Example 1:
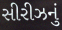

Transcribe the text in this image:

સીરીઝનું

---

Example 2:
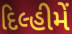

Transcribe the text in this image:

દિલ્હીમેં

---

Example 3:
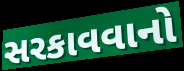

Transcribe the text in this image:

સરકાવવાનો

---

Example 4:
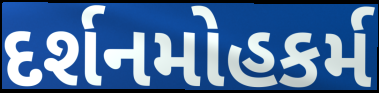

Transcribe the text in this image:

દર્શનમોહકર્મ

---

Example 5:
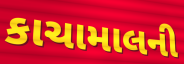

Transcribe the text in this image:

કાચામાલની